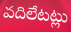
వదిలేటట్లు